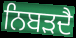
ਨਿਬੜਦੈ